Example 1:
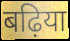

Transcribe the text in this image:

बढ़िया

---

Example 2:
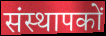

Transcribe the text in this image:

संस्थापकों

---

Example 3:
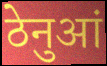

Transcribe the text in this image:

ठेनुआं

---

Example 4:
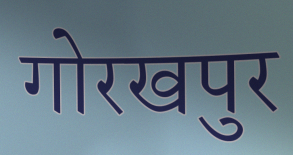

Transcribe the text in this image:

गोरखपुर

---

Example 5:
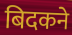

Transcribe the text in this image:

बिदकने